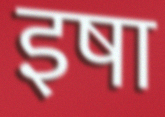
इषा